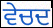
ਵੇਚਦ